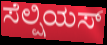
ಸೆಲ್ಷಿಯಸ್